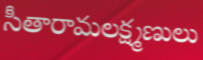
సీతారామలక్ష్మణులు